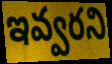
ఇవ్వరని